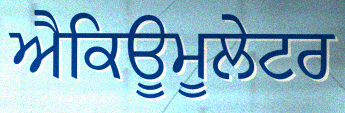
ਐਕਿਊਮੂਲੇਟਰ